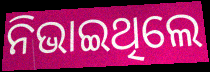
ନିଭାଇଥିଲେ